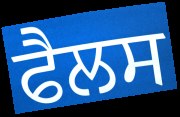
ਫੈਲਸ